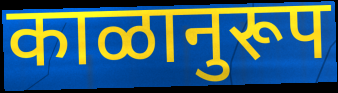
काळानुरूप